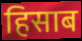
हिसाब